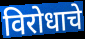
विरोधाचे